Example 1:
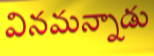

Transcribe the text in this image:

వినమన్నాడు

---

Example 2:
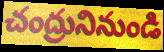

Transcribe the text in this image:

చంద్రునినుండి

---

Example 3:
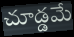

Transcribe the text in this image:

చూడ్డమే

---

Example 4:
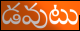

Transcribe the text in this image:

డవుటు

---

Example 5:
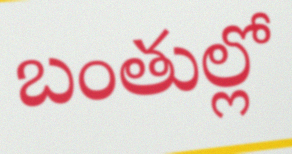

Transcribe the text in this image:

బంతుల్లో